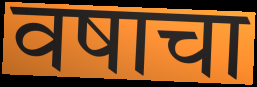
वषाचा